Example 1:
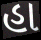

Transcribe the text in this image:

હા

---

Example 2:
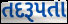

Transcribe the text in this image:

તદરૂપતા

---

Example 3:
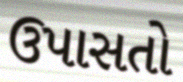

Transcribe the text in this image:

ઉપાસતો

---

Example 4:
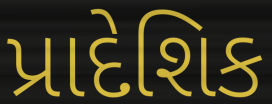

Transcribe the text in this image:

પ્રાદેશિક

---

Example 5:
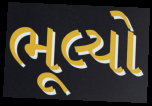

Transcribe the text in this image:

ભૂલ્યો